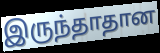
இருந்தாதான